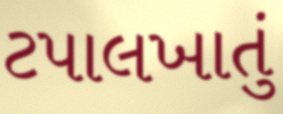
ટપાલખાતું